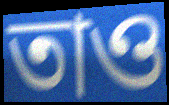
তাও